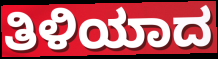
ತಿಳಿಯಾದ